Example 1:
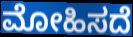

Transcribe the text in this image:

ಮೋಹಿಸದೆ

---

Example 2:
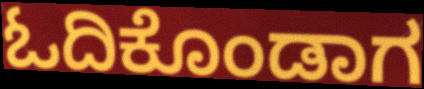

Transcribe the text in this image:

ಓದಿಕೊಂಡಾಗ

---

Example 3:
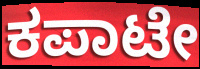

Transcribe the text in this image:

ಕಪಾಟೇ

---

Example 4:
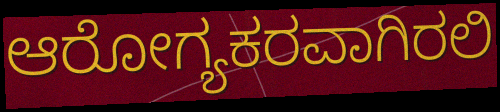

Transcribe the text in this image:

ಆರೋಗ್ಯಕರವಾಗಿರಲಿ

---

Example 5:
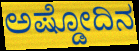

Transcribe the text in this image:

ಅಷ್ಡೋದಿನ